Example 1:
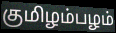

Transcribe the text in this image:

குமிழம்பழம்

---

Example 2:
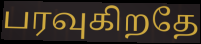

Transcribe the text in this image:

பரவுகிறதே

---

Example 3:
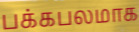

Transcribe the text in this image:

பக்கபலமாக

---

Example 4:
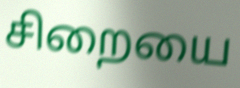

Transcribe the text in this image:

சிறையை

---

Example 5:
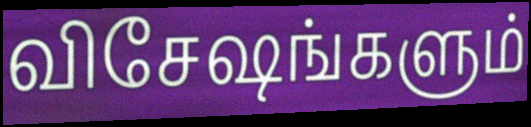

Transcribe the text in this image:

விசேஷங்களும்